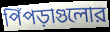
পিঁপড়াগুলোর